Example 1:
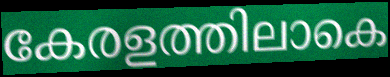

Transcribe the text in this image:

കേരളത്തിലാകെ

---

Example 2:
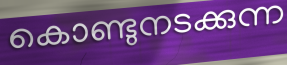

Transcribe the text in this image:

കൊണ്ടുനടക്കുന്ന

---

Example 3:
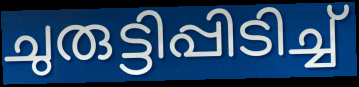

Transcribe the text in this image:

ചുരുട്ടിപ്പിടിച്ച്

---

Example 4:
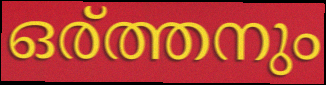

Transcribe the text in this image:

ഒര്ത്തനും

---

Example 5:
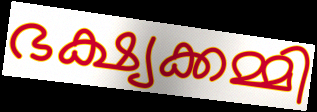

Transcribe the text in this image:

ഭക്ഷ്യക്കമ്മി